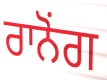
ਰਾਨੋਂਗ